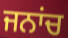
ਜਨਾਂਚ